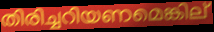
തിരിച്ചറിയണമെങ്കില്